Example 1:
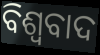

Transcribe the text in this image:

ବିଶ୍ୱବାଦ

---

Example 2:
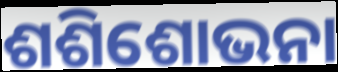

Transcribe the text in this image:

ଶଶିଶୋଭନା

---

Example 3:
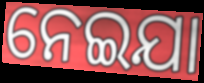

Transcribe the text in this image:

ନେଇଯା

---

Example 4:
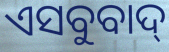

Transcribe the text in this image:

ଏସବୁବାଦ୍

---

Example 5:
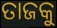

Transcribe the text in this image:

ତାଜକୁ